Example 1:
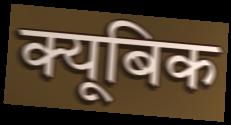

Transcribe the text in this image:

क्‍यूबिक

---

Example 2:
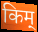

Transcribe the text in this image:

किम्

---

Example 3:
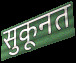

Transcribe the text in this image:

सुकूनत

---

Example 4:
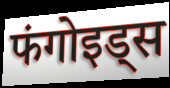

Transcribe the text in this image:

फंगोइड्स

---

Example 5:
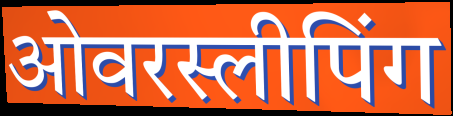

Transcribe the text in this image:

ओवरस्लीपिंग